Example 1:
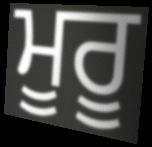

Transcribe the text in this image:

ਮੂਰੂ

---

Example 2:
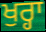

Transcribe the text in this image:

ਖੁਰ੍ਹਾ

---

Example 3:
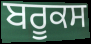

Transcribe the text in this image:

ਬਰੂਕਸ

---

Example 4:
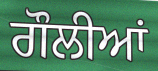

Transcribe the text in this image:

ਗੌਲੀਆਂ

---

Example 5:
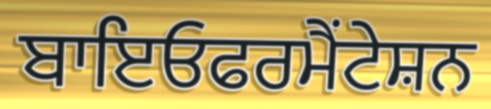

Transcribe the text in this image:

ਬਾਇਓਫਰਮੈਂਟੇਸ਼ਨ